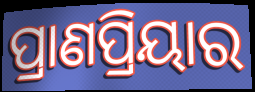
ପ୍ରାଣପ୍ରିୟାର